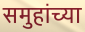
समुहांच्या